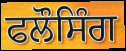
ਫਲੌਸਿੰਗ